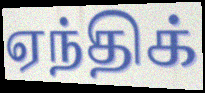
ஏந்திக்